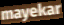
mayekar